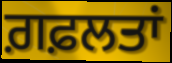
ਗ਼ਫ਼ਲਤਾਂ